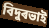
বিদুৰভাই